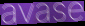
avase